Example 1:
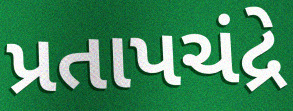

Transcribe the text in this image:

પ્રતાપચંદ્રે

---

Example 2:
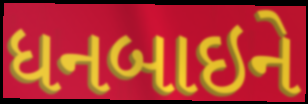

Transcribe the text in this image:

ધનબાઇને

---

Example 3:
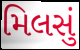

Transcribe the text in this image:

મિલસું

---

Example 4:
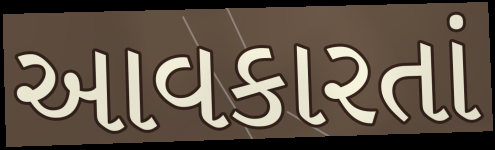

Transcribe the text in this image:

આવકારતાં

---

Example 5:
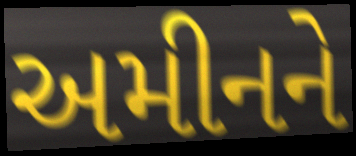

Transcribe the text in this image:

અમીનને